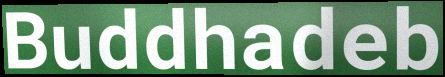
Buddhadeb